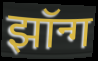
झॉन्ग